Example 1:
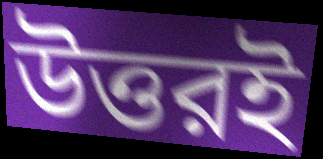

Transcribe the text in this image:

উত্তরই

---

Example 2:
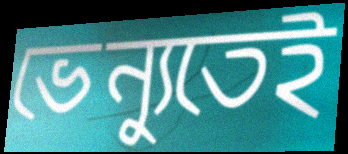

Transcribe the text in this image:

ভেন্যুতেই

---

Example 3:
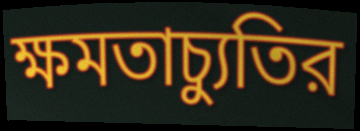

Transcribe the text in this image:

ক্ষমতাচ্যুতির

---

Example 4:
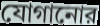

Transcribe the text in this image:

যোগানোর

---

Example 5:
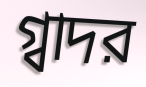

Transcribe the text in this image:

গ্বাদর